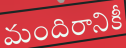
మందిరానికీ